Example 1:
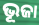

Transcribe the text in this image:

ଭୂଜା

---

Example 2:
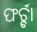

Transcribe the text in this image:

ଫର୍ଚ୍ଚା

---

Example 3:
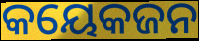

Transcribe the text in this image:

କୟେକଜନ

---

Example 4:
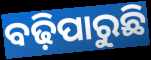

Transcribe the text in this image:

ବଢ଼ିପାରୁଛି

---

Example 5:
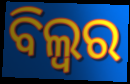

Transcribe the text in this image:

ବିଲ୍ୱର